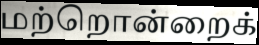
மற்றொன்றைக்